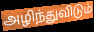
அழிந்துவிடும்